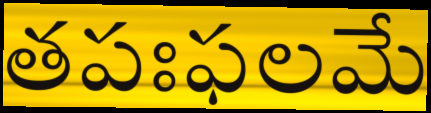
తపఃఫలమే